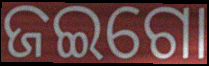
ଜଇଗୋ